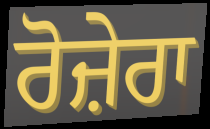
ਰੋਜ਼ੇਰਾ